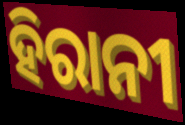
ହିରାନୀ